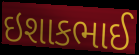
ઇશાકભાઈ